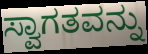
ಸ್ವಾಗತವನ್ನು